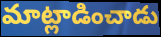
మాట్లాడించాడు